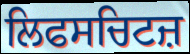
ਲਿਫਸਚਿਟਜ਼